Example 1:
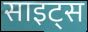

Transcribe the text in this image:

साइट्स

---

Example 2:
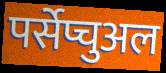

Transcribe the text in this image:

पर्सेप्चुअल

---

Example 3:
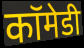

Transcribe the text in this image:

कॉमेडी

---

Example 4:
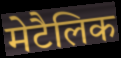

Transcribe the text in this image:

मेटैलिक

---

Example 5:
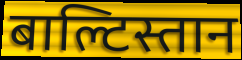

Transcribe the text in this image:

बाल्टिस्तान